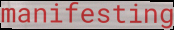
manifesting